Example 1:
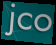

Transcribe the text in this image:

jco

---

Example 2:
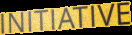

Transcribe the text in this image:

INITIATIVE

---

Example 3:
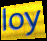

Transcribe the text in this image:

loy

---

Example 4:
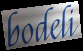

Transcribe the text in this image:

bodeli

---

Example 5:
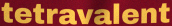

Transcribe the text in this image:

tetravalent